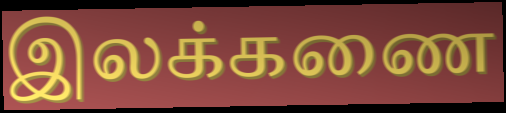
இலக்கணை